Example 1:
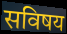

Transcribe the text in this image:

सविषय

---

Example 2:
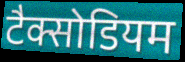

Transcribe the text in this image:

टैक्सोडियम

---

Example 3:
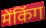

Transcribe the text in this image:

मेंकिंग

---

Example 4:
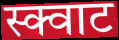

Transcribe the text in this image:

स्क्वाट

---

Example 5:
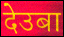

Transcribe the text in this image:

देउबा